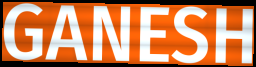
GANESH